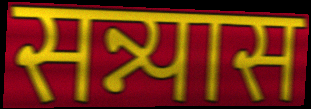
सन्न्यास